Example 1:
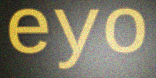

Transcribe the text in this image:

eyo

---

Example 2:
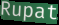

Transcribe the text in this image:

Rupat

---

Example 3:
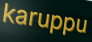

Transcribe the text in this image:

karuppu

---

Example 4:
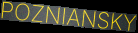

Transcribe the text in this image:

POZNIANSKY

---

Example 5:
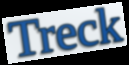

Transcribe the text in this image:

Treck